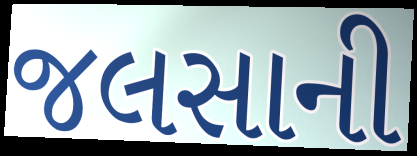
જલસાની